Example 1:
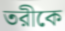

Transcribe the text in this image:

তরীকে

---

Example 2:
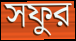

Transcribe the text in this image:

সফুর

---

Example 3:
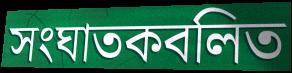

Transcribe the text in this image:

সংঘাতকবলিত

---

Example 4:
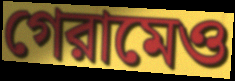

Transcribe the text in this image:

গেরামেও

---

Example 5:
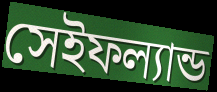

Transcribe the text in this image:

সেইফল্যান্ড